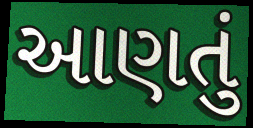
આણતું